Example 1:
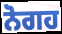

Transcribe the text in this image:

ਨੋਗਹ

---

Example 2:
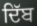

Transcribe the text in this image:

ਦਿੱਬ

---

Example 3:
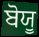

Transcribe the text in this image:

ਬੋਯੂ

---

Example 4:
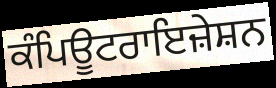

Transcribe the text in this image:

ਕੰਪਿਊਟਰਾਇਜ਼ੇਸ਼ਨ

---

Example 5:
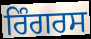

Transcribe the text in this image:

ਰਿੰਗਰਸ